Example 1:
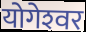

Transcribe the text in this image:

योगेश्‍वर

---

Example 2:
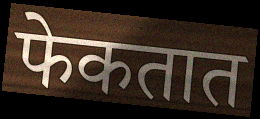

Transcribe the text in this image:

फेकतात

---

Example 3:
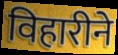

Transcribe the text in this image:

विहारीने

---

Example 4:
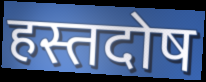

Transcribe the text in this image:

हस्तदोष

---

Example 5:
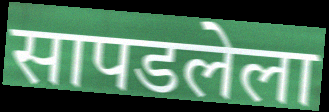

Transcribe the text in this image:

सापडलेला